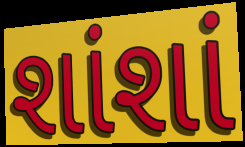
શાંશાં